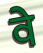
वे